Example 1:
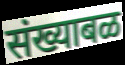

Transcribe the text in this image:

संख्याबळ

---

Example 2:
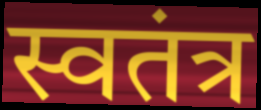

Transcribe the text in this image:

स्‍वतंत्र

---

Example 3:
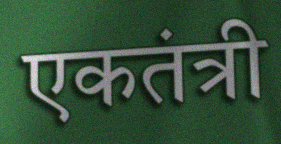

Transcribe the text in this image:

एकतंत्री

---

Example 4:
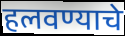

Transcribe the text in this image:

हलवण्याचे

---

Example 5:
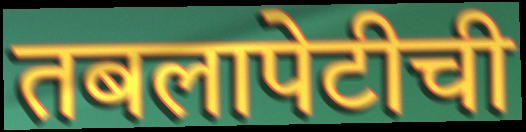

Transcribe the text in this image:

तबलापेटीची